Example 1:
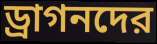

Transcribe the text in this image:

ড্রাগনদের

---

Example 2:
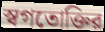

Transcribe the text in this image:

স্বগতোক্তির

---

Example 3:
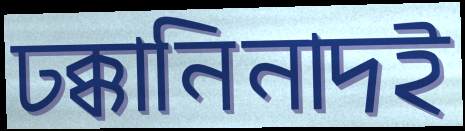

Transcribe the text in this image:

ঢক্কানিনাদই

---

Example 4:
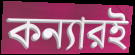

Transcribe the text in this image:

কন্যারই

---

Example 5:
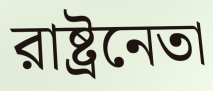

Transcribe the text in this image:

রাষ্ট্রনেতা